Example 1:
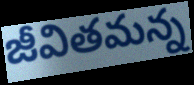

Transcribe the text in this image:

జీవితమన్న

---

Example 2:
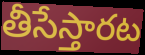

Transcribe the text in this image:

తీసేస్తారట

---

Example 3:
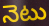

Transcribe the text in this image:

నెటు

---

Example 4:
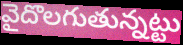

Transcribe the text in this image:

వైదొలగుతున్నట్టు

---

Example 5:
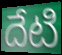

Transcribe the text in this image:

దేటి